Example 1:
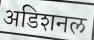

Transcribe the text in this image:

अडिशनल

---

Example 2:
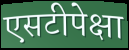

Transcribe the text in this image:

एसटीपेक्षा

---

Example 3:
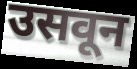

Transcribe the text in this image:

उसवून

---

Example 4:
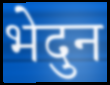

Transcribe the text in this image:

भेदुन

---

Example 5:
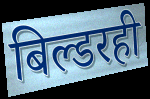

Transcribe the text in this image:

बिल्डरही